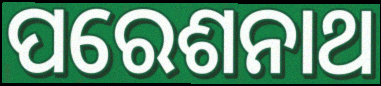
ପରେଶନାଥ